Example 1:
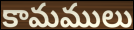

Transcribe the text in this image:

కామములు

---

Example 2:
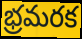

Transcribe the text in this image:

భ్రమరక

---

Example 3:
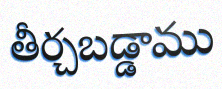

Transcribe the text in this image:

తీర్చబడ్డాము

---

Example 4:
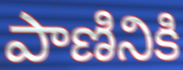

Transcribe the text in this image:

పాణినికి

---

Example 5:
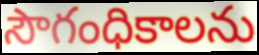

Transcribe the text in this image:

సౌగంధికాలను